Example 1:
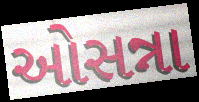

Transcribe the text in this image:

ઓસન્ના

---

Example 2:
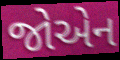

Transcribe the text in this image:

જોએન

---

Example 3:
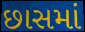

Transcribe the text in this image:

છાસમાં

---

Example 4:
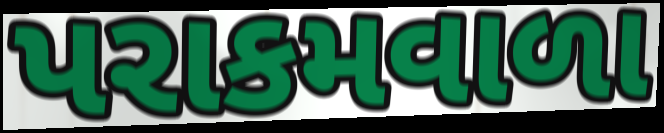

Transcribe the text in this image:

પરાકમવાળા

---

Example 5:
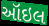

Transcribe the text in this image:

ઑઇલ